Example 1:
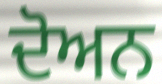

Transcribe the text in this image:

ਦੋਅਨ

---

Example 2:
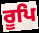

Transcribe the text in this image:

ਰੂਪਿ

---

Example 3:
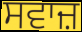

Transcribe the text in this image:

ਸਵਾਜ਼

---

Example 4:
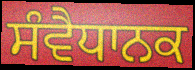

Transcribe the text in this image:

ਸੰਵੈਧਾਨਕ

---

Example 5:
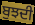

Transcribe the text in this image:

ਬੁਝਦੀ